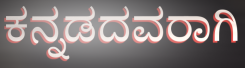
ಕನ್ನಡದವರಾಗಿ